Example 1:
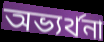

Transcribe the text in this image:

অভ্যর্থনা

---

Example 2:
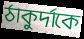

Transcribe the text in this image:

ঠাকুর্দাকে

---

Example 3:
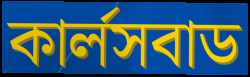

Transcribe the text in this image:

কার্লসবাড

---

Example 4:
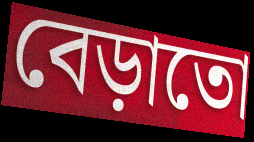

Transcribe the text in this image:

বেড়াতো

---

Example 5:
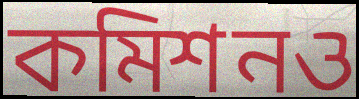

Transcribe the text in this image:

কমিশনও